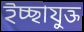
ইচ্ছাযুক্ত